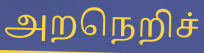
அறநெறிச்